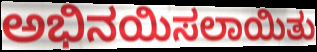
ಅಭಿನಯಿಸಲಾಯಿತು